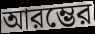
আরম্ভের